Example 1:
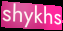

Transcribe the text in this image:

shykhs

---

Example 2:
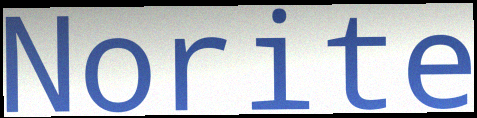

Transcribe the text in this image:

Norite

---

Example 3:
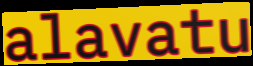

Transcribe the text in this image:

alavatu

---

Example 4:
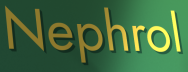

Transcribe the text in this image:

Nephrol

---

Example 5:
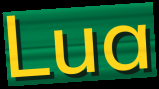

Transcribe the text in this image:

Lua